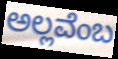
ಅಲ್ಲವೆಂಬ